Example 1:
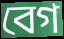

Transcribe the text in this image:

বেগ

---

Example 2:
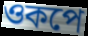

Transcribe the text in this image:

ওকপে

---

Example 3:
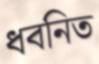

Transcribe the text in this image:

ধবনিত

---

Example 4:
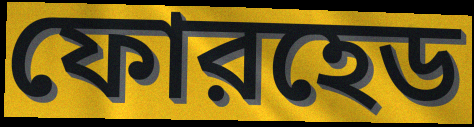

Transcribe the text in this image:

ফোরহেড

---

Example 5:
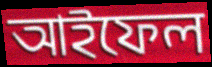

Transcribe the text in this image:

আইফেল